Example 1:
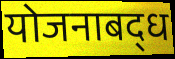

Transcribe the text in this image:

योजनाबद्ध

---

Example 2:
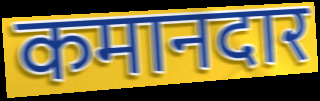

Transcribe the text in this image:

कमानदार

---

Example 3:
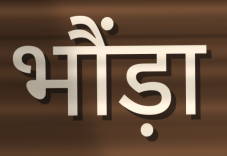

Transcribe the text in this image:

भौंड़ा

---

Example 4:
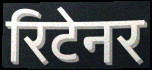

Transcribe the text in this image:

रिटेनर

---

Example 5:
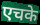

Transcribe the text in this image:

एचके